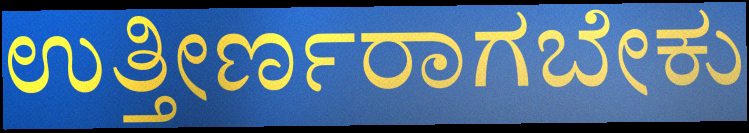
ಉತ್ತೀರ್ಣರಾಗಬೇಕು